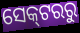
ସେକ୍‌ଟରରୁ